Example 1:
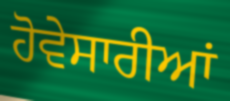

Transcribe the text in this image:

ਹੋਵੇਸਾਰੀਆਂ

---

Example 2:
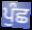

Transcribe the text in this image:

ਪੁੰਛ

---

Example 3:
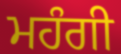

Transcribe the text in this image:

ਮਹੰਗੀ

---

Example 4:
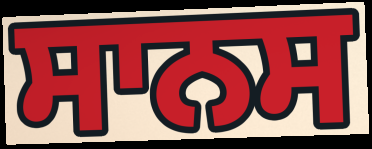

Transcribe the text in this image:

ਸਾਨਸ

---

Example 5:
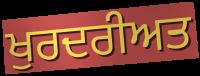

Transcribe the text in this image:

ਖੁਰਦਰੀਅਤ